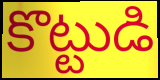
కొట్టుడి